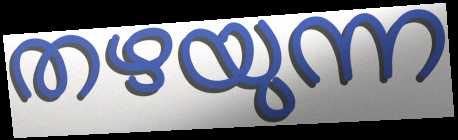
തഴയുന്ന